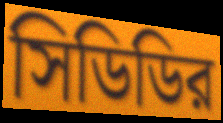
সিডিডির